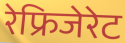
रेफ्रिजेरेट